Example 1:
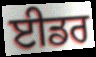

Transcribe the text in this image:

ਈਡਰ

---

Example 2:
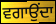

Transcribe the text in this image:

ਵਗਾਉਂਦਾ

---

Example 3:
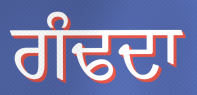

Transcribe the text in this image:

ਗੰਢਦਾ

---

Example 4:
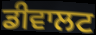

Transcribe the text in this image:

ਡੀਵਾਲਟ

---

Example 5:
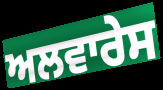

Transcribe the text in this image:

ਅਲਵਾਰੇਸ